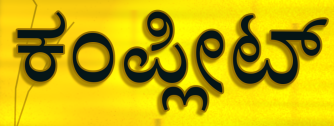
ಕಂಪ್ಲೀಟ್